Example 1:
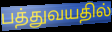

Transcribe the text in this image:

பத்துவயதில்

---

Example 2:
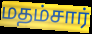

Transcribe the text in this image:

மதம்சார்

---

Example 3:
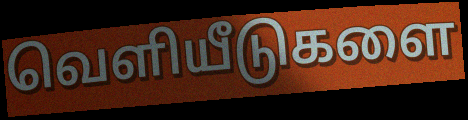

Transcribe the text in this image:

வெளியீடுகளை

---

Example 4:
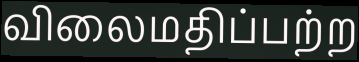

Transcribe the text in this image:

விலைமதிப்பற்ற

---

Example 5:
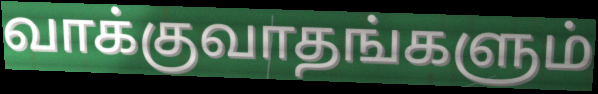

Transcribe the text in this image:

வாக்குவாதங்களும்